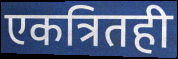
एकत्रितही